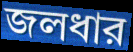
জলধার